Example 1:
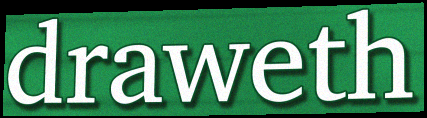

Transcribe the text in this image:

draweth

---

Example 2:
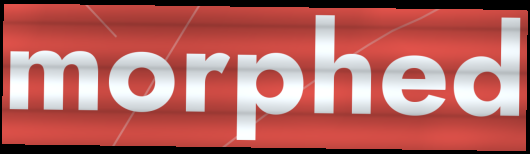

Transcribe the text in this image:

morphed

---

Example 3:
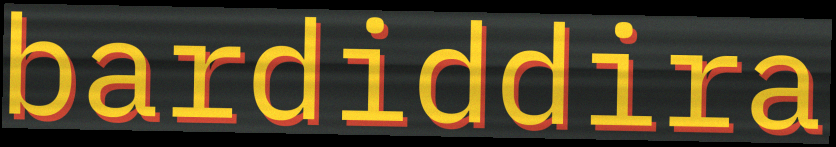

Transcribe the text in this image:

bardiddira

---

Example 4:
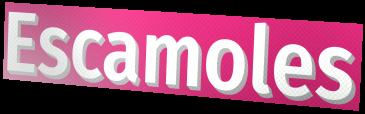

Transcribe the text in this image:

Escamoles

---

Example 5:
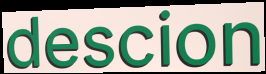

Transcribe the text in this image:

descion